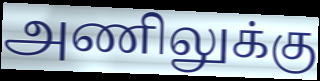
அணிலுக்கு